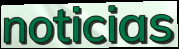
noticias